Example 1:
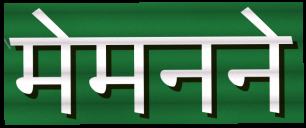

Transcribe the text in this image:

मेमनने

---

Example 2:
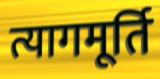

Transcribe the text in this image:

त्यागमूर्ति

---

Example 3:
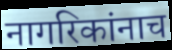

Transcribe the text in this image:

नागरिकांनाच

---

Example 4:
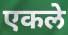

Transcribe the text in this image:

एकले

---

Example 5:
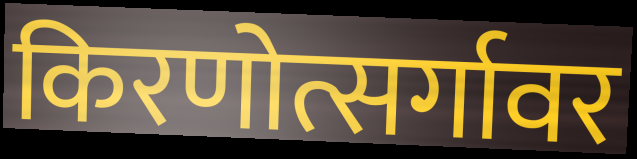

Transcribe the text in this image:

किरणोत्सर्गावर